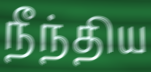
நீந்திய